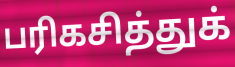
பரிகசித்துக்